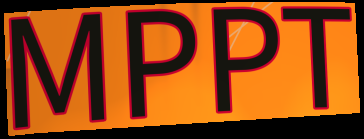
MPPT